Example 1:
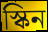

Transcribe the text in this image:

স্কিন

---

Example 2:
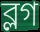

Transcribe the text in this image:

ব্লগ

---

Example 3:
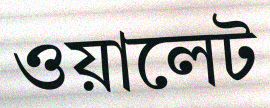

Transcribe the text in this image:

ওয়ালেট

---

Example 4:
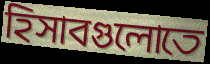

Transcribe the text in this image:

হিসাবগুলোতে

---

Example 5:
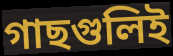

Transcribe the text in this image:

গাছগুলিই